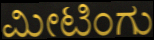
ಮೀಟಿಂಗು